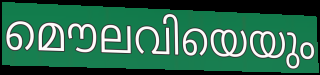
മൌലവിയെയും